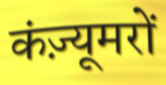
कंज़्यूमरों